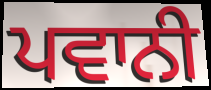
ਪਵਾਨੀ